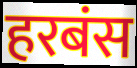
हरबंस